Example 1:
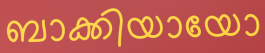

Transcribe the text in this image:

ബാക്കിയായോ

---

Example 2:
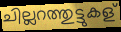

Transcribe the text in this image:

ചില്ലറത്തുട്ടുകള്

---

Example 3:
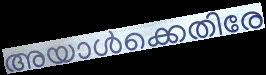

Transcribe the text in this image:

അയാൾക്കെതിരേ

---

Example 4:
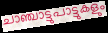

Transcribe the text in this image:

ചാഞ്ചാട്ടുപാട്ടുകളും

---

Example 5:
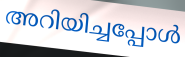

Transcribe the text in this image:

അറിയിച്ചപ്പോൾ